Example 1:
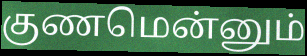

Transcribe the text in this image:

குணமென்னும்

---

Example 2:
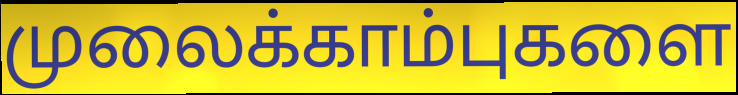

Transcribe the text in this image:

முலைக்காம்புகளை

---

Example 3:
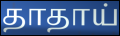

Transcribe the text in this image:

தாதாய்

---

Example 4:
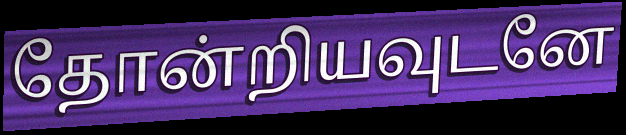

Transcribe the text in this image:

தோன்றியவுடனே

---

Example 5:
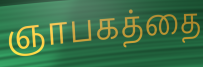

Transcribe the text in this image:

ஞாபகத்தை